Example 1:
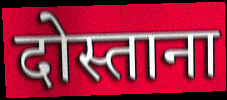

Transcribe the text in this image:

दोस्ताना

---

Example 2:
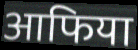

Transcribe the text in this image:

आफिया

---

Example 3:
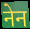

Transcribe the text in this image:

नेन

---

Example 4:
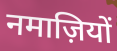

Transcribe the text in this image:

नमाज़ियों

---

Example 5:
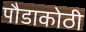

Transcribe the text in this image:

पौडाकोठी